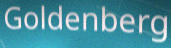
Goldenberg